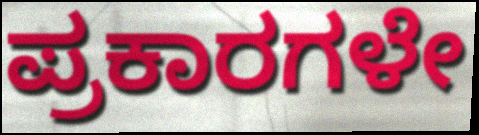
ಪ್ರಕಾರಗಳೇ